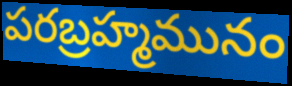
పరబ్రహ్మమునం